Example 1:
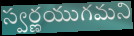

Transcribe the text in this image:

స్వర్ణయుగమని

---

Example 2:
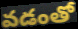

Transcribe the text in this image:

వడంతో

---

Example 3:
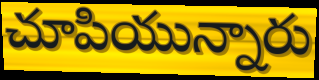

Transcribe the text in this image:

చూపియున్నారు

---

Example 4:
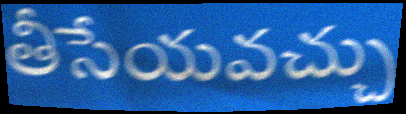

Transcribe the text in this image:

తీసేయవచ్చు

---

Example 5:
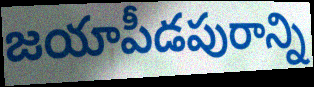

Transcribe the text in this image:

జయాపీడపురాన్ని